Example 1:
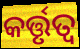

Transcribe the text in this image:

କର୍ତ୍ତୃତ୍ଵ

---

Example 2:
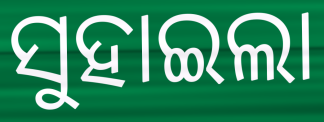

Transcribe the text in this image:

ସୁହାଇଲା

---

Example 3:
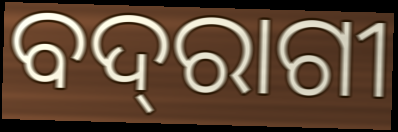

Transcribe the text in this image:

ବଦ୍‌ରାଗୀ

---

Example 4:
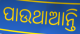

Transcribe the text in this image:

ପାଉଥାଆନ୍ତି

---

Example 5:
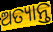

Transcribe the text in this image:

ଅତ୍ୟାନ୍ତ